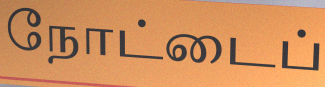
நோட்டைப்